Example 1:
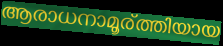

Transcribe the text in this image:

ആരാധനാമൂര്ത്തിയായ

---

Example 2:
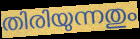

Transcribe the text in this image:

തിരിയുന്നതും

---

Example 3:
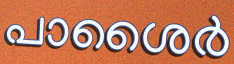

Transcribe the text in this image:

പാശൈർ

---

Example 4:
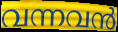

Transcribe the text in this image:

വന്നവൻ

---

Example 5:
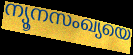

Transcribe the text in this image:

ന്യൂനസംഖ്യയെ